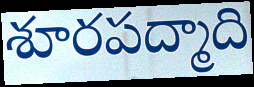
శూరపద్మాది